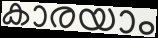
കാരയാം